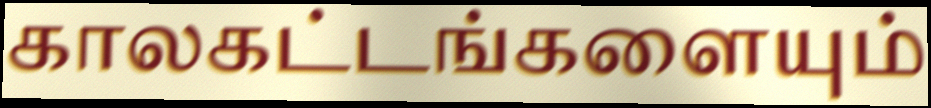
காலகட்டங்களையும்